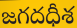
జగదధీశ